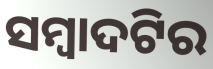
ସମ୍ବାଦଟିର